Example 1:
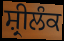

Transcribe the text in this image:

ਸ਼੍ਰੀਲੰਕ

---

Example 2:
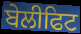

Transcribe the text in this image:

ਬੇਲੀਫਿਟ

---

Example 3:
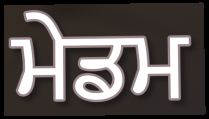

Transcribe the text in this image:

ਮੇਡਮ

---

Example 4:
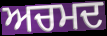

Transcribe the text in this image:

ਅਚਮਦ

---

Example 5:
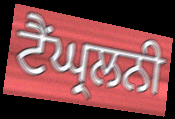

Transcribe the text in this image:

ਟੈਂਘ੍ਰਲਨੀ